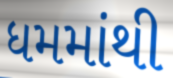
ધમમાંથી